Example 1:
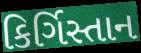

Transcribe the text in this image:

કિર્ગિસ્તાન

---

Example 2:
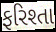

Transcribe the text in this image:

ફરિશ્તા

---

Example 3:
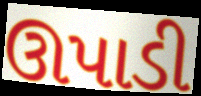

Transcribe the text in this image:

ઊપાડી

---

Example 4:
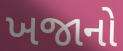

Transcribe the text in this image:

ખજાનો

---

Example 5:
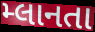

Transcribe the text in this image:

મ્લાનતા